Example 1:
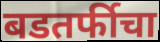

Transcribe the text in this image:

बडतर्फीचा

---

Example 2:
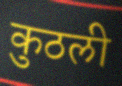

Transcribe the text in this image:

कुठली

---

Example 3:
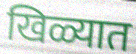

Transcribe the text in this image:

खिळ्यात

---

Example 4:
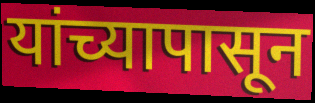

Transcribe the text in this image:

यांच्यापासून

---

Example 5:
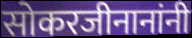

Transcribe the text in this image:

सोकरजीनानांनी